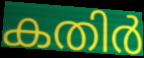
കതിർ